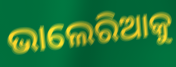
ଭାଲେରିଆକୁ